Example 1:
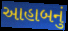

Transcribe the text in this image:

આહાબનું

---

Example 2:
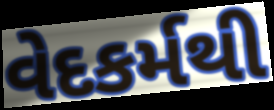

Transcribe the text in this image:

વેદકર્મથી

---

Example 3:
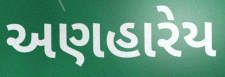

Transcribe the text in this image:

અણહારેય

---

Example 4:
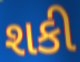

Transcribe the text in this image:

શકી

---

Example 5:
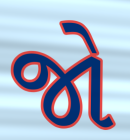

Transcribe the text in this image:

જો